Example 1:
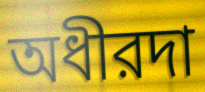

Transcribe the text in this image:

অধীরদা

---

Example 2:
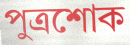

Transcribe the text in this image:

পুত্রশোক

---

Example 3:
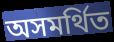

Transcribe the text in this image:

অসমর্থিত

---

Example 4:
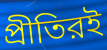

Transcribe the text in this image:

প্রীতিরই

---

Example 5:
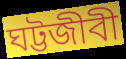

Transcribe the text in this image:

ঘট্টজীবী